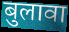
बुलावा